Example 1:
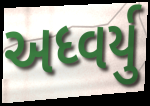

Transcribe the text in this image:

અધ્વર્યુ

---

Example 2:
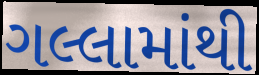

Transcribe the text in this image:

ગલ્લામાંથી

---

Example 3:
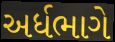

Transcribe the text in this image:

અર્ધભાગે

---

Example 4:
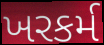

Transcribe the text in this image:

ખરકર્મ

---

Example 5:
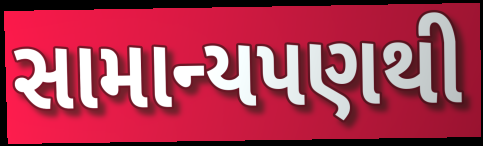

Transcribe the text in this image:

સામાન્યપણથી